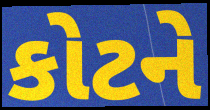
કોટને